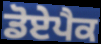
ਡੋਏਪੈਕ